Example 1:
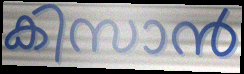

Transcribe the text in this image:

കിസാൻ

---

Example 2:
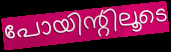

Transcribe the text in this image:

പോയിന്റിലൂടെ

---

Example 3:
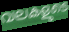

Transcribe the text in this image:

വലകളുടെ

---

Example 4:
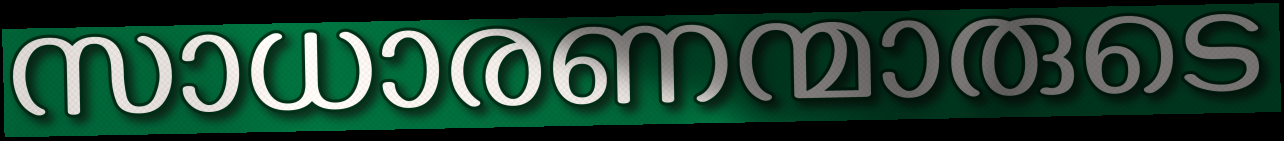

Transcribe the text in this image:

സാധാരണന്മാരുടെ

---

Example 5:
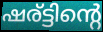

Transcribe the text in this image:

ഷര്ട്ടിന്റെ